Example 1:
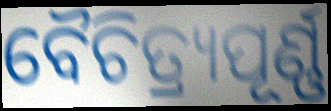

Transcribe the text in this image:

ବୈଚିତ୍ର୍ୟପୂର୍ଣ୍ଣ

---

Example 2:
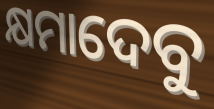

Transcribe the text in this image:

କ୍ଷମାଦେବୁ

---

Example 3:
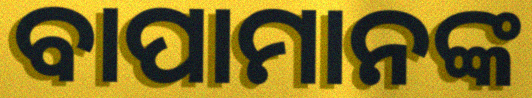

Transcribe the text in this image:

ବାପାମାନଙ୍କ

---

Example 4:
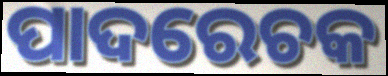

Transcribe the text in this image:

ପାଦରେଚକ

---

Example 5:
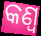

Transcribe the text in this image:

କଣ୍ୱ